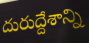
దురుద్దేశాన్ని